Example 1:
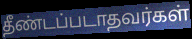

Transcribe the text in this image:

தீண்டப்படாதவர்கள்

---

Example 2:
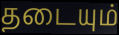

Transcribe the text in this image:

தடையும்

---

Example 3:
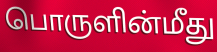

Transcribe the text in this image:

பொருளின்மீது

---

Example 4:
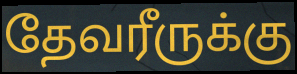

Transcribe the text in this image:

தேவரீருக்கு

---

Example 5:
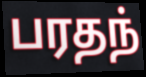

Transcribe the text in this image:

பரதந்